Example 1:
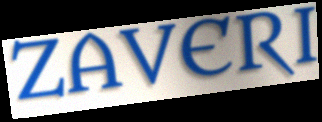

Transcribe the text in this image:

ZAVERI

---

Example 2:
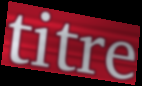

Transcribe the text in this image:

titre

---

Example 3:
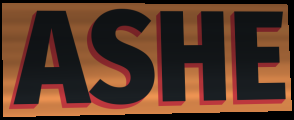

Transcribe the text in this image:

ASHE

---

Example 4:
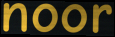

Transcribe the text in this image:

noor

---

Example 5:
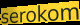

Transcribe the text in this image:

serokom